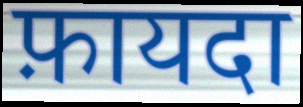
फ़ायदा